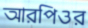
আরপিওর